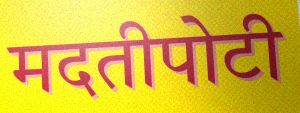
मदतीपोटी